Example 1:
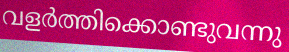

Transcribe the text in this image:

വളർത്തിക്കൊണ്ടുവന്നു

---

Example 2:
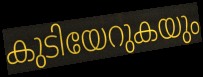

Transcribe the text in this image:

കുടിയേറുകയും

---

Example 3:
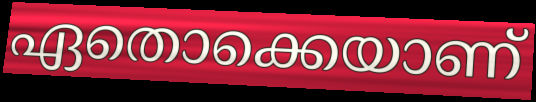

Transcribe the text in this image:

ഏതൊക്കെയാണ്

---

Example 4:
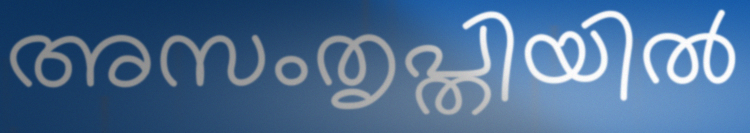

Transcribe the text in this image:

അസംതൃപ്തിയിൽ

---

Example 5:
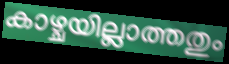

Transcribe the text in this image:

കാഴ്ചയില്ലാത്തതും